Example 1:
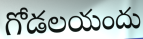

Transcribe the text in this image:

గోడలయందు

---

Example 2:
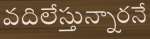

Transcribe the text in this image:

వదిలేస్తున్నారనే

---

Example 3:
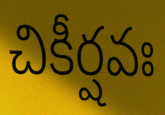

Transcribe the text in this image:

చికీర్షవః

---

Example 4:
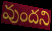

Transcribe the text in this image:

వుందని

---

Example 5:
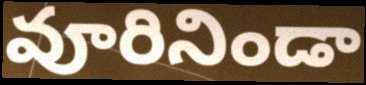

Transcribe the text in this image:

వూరినిండా